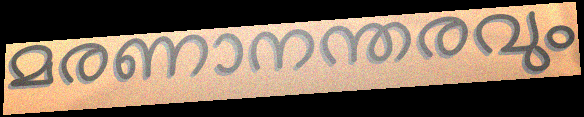
മരണാനന്തരവും